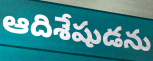
ఆదిశేషుడను